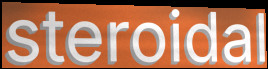
steroidal